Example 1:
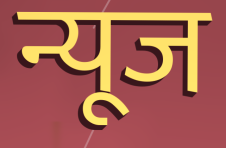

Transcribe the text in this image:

न्‍यूज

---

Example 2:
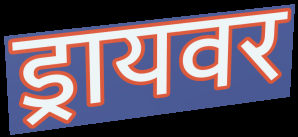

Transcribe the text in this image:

ड्रायवर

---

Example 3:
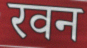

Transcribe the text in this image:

रवन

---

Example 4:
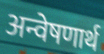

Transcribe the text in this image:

अन्वेषणार्थ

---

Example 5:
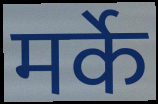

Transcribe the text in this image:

मर्के